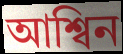
আশ্বিন